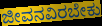
ಜೀವನವಿರಬೇಕು